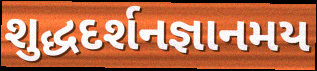
શુદ્ધદર્શનજ્ઞાનમય